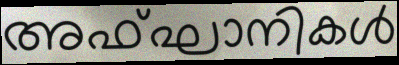
അഫ്ഘാനികൾ